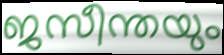
ജസീന്തയും